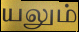
யலும்